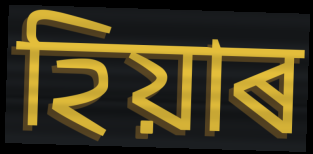
হিয়াৰ